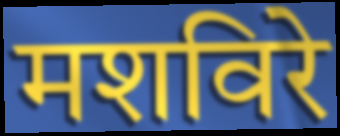
मशविरे